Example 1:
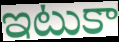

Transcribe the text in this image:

ఇటుకా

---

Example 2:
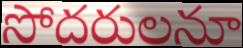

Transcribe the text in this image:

సోదరులనూ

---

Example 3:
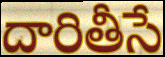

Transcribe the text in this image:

దారితీసే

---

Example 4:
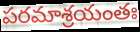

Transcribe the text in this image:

పరమాశ్రయంతః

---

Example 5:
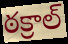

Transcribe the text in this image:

ఠక్రాల్